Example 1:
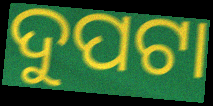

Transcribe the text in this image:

ଦୁପଟା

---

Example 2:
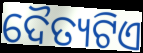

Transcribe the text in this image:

ଦୈତ୍ୟଟିଏ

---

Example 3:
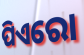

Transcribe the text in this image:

ପିଏରୋ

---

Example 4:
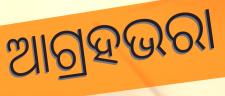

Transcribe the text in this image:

ଆଗ୍ରହଭରା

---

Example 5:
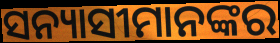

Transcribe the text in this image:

ସନ୍ୟାସୀମାନଙ୍କର